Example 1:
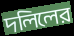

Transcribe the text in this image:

দলিলের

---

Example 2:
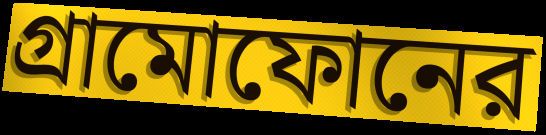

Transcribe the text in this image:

গ্রামোফোনের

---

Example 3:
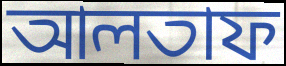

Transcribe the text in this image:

আলতাফ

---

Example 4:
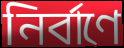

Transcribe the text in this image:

নির্বাণে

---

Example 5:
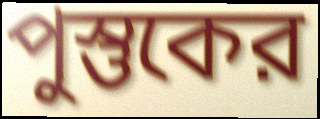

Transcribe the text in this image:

পুস্তুকের